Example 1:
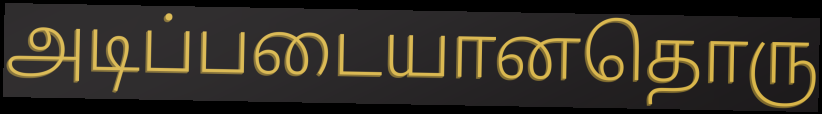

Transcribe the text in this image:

அடிப்படையானதொரு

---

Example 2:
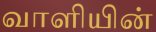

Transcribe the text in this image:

வாளியின்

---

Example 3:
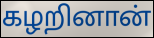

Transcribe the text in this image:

கழறினான்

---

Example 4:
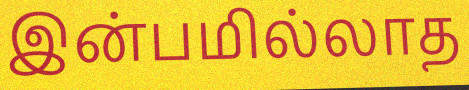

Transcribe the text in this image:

இன்பமில்லாத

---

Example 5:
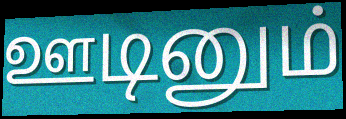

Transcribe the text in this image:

ஊடினும்